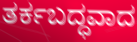
ತರ್ಕಬದ್ಧವಾದ